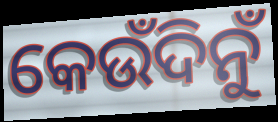
କେଉଁଦିନୁଁ